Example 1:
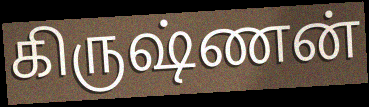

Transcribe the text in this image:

கிருஷ்ணன்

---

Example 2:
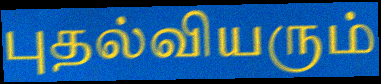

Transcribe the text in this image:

புதல்வியரும்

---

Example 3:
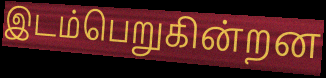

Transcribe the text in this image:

இடம்பெறுகின்றன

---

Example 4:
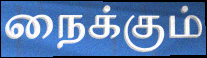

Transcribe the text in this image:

நைக்கும்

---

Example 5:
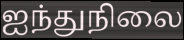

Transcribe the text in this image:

ஐந்துநிலை